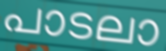
പാടലാ